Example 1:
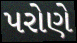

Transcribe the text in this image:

પરોણે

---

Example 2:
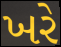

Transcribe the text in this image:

ખરે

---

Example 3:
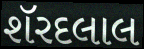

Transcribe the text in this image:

શૅરદલાલ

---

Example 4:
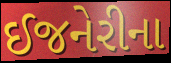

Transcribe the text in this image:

ઈજનેરીના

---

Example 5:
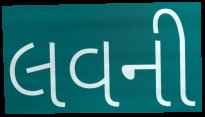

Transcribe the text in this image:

લવની